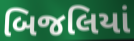
બિજલિયાં